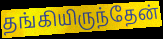
தங்கியிருந்தேன்